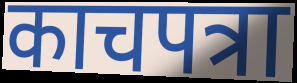
काचपत्रा